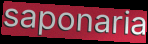
saponaria